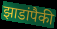
झाडांपैकी